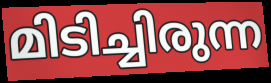
മിടിച്ചിരുന്ന